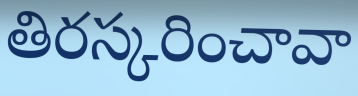
తిరస్కరించావా